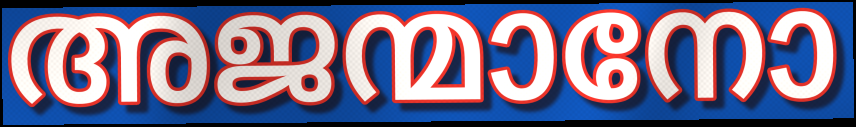
അജന്മാനോ